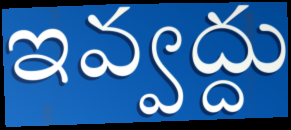
ఇవ్వద్దు